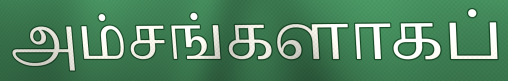
அம்சங்களாகப்